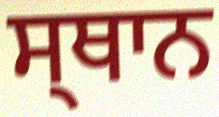
ਸ੍ਥਾਨ